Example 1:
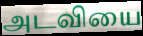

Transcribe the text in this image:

அடவியை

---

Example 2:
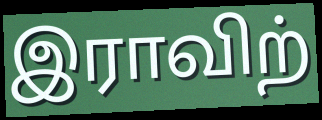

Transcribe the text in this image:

இராவிற்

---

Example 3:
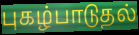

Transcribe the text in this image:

புகழ்பாடுதல்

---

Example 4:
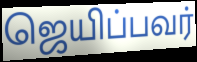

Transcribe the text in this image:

ஜெயிப்பவர்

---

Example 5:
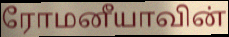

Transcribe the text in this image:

ரோமனீயாவின்